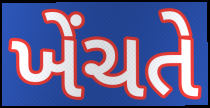
ખેંચતે